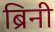
ब्रिनी